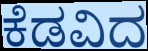
ಕೆಡವಿದ